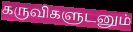
கருவிகளுடனும்